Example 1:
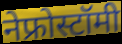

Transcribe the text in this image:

नेफ्रोस्टॉमी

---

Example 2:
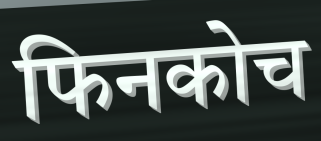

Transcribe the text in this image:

फिनकोच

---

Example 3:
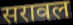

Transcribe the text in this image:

सरावल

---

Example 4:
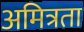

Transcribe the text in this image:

अमित्रता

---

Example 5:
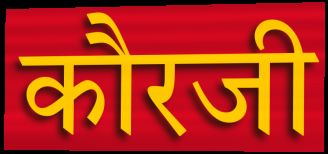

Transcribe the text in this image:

कौरजी